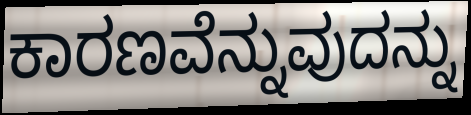
ಕಾರಣವೆನ್ನುವುದನ್ನು